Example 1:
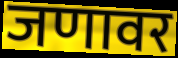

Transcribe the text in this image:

जणावर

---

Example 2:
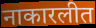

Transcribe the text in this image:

नाकारलीत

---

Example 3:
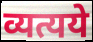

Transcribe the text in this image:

व्यत्यये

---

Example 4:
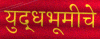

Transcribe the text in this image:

युद्धभूमीचे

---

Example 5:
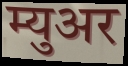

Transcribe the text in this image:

म्युअर